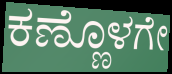
ಕಣ್ಣೊಳಗೇ